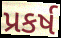
પ્રકર્ષ